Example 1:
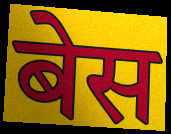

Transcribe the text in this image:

बेस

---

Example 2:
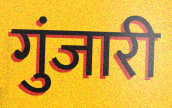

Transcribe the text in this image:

गुंजारी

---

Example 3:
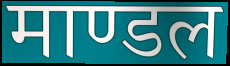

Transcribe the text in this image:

माण्डल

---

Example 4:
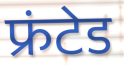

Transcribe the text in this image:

फ्रंटेड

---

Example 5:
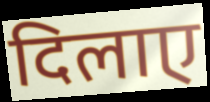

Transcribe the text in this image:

दिलाए